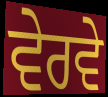
ਵੇਰਵੇ